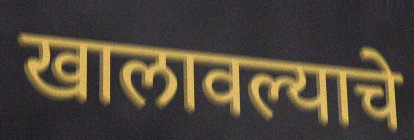
खालावल्याचे